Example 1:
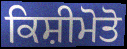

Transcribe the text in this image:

ਕਿਸ਼ੀਮੋਤੋ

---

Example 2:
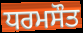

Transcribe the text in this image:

ਧਰਮਸੌਤ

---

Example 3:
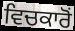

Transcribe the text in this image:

ਵਿਚਕਾਰੋਂ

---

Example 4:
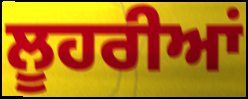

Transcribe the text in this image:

ਲੂਹਰੀਆਂ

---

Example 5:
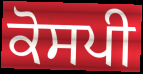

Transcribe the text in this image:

ਕੋਸਪੀ